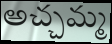
అచ్చమ్మ